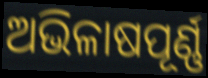
ଅଭିଳାଷପୂର୍ଣ୍ଣ